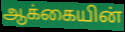
ஆக்கையின்